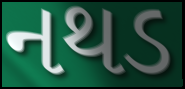
નથડ